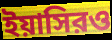
ইয়াসিরও